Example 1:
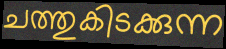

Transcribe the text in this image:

ചത്തുകിടക്കുന്ന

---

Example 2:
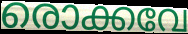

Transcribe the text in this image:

രൊക്കവേ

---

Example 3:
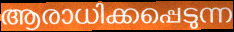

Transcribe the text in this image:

ആരാധിക്കപ്പെടുന്ന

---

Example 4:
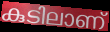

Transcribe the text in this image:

കുടിലാണ്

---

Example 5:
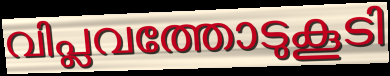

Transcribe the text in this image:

വിപ്ലവത്തോടുകൂടി